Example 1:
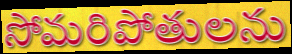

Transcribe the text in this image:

సోమరిపోతులను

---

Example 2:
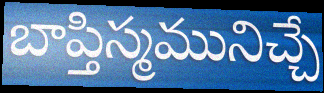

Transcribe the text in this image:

బాప్తిస్మమునిచ్చే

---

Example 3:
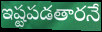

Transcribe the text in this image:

ఇష్టపడతారనే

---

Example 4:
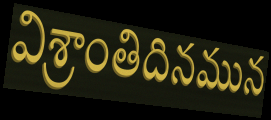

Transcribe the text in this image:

విశ్రాంతిదినమున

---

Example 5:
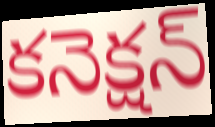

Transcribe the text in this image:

కనెక్షన్